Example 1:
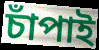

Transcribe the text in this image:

চাঁপাই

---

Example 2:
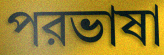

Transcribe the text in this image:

পরভাষা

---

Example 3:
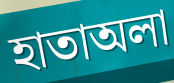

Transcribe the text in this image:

হাতাঅলা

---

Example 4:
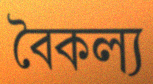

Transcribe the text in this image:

বৈকল্য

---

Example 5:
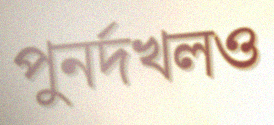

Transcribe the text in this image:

পুনর্দখলও